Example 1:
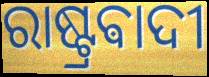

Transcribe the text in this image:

ରାଷ୍ଟ୍ରଵାଦୀ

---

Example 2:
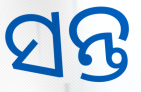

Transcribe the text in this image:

ସନ୍ତ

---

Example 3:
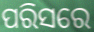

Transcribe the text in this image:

ପରିସରେ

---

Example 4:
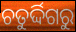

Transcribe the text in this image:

ଚତୁର୍ଦ୍ଦିଗରୁ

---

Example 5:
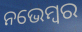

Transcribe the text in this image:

ନଭେମ୍ବର